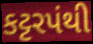
કટ્ટરપંથી